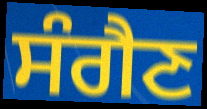
ਸੰਗੈਣ